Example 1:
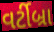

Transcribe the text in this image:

વર્ટીબ્રા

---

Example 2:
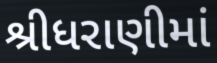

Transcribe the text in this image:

શ્રીધરાણીમાં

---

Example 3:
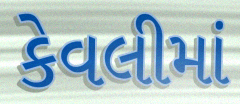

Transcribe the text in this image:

કેવલીમાં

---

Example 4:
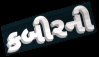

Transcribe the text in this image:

કબીરની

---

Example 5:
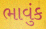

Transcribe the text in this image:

ભાવુંક